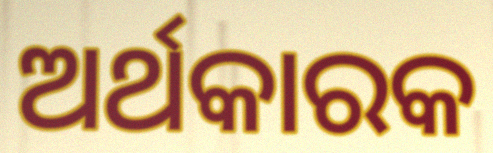
ଅର୍ଥକାରକ